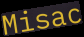
Misac